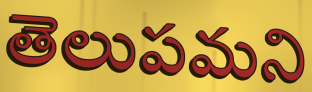
తెలుపమని